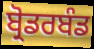
ਬ੍ਰੋਡਰਬੰਡ